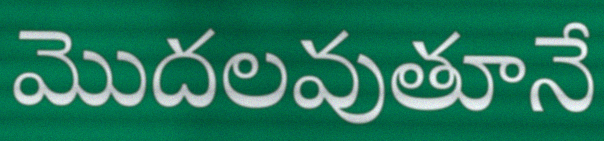
మొదలవుతూనే